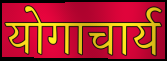
योगाचार्य